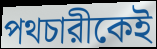
পথচারীকেই